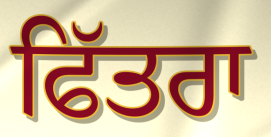
ਫਿੱਤਰਾ